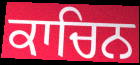
ਕਾਚਿਨ